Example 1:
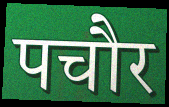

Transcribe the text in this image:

पचौर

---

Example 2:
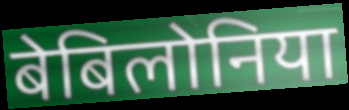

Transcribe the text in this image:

बेबिलोनिया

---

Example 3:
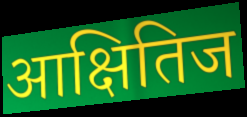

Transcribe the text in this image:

आक्षितिज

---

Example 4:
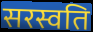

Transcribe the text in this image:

सरस्वति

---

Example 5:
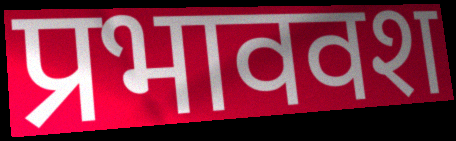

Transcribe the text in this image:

प्रभाववश